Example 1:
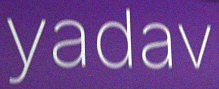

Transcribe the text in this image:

yadav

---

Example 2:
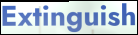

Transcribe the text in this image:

Extinguish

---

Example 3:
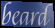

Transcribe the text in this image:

beard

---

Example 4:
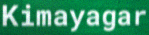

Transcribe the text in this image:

Kimayagar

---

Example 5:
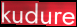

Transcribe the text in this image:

kudure